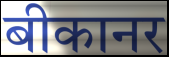
बीकानर